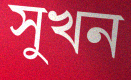
সুখন